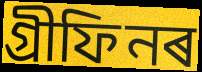
গ্ৰীফিনৰ